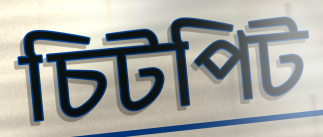
চিটপিট